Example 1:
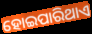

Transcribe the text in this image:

ହୋଇପାରିଥାଏ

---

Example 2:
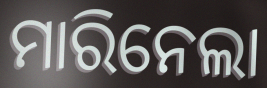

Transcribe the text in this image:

ମାରିନେଲା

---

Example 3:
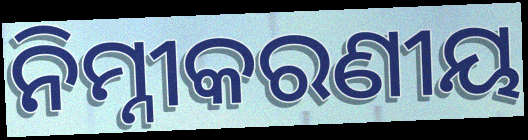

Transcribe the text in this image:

ନିମ୍ନୀକରଣୀୟ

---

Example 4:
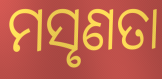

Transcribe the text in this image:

ମସୃଣତା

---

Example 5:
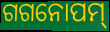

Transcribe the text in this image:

ଗଗନୋପମ୍